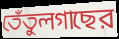
তেঁতুলগাছের